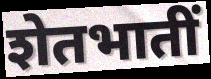
शेतभातीं